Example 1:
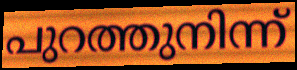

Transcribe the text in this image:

പുറത്തുനിന്ന്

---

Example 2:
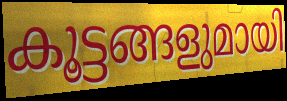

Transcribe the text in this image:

കൂട്ടങ്ങളുമായി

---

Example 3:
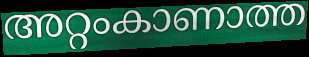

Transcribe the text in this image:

അറ്റംകാണാത്ത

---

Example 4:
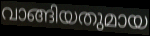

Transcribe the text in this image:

വാങ്ങിയതുമായ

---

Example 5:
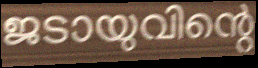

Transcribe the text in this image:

ജടായുവിന്റെ